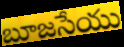
బూజసేయు